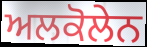
ਅਲਕੋਲੇਨ